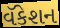
વૅકેશન